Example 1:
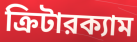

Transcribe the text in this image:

ক্রিটারক্যাম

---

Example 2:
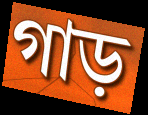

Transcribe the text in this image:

গাড়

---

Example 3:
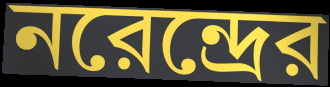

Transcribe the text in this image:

নরেন্দ্রের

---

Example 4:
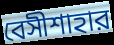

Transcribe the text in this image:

বেসীশাহার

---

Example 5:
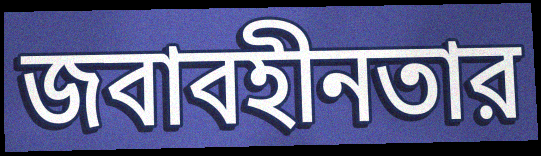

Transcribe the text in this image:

জবাবহীনতার